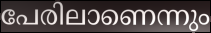
പേരിലാണെന്നും